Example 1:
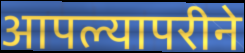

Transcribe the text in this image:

आपल्यापरीने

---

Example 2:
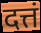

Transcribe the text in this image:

दत्तं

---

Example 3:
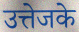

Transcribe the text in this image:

उत्तेजके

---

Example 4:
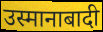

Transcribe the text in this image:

उस्मानाबादी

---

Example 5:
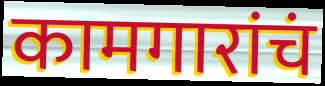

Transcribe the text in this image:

कामगारांचं